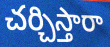
చర్చిస్తారా